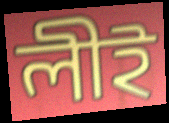
লীই